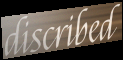
discribed